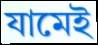
যামেই